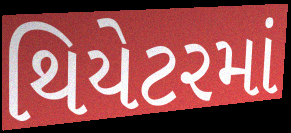
થિયેટરમાં